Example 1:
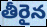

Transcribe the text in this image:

తీరైన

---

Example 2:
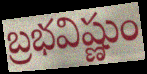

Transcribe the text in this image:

బ్రభవిష్ణుం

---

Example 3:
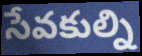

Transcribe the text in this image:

సేవకుల్ని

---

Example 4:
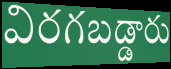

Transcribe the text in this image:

విరగబడ్డారు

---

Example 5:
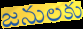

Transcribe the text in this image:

జనులకు